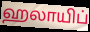
ஹலாயிப்